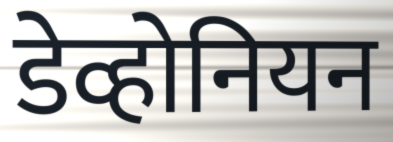
डेव्होनियन